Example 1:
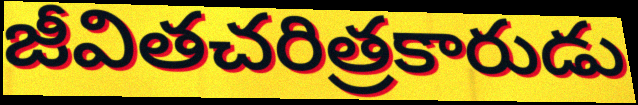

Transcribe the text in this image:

జీవితచరిత్రకారుడు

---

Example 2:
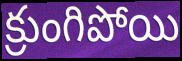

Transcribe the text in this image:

క్రుంగిపోయి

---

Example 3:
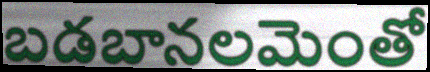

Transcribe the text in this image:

బడబానలమెంతో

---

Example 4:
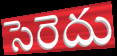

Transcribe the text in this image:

సెరెదు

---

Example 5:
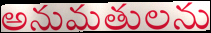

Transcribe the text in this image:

అనుమతులను